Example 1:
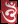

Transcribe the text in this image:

ঔঁ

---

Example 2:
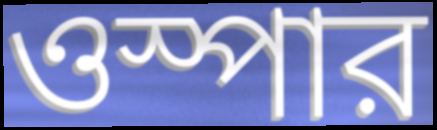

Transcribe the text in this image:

ওস্পার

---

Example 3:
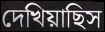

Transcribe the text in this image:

দেখিয়াছিস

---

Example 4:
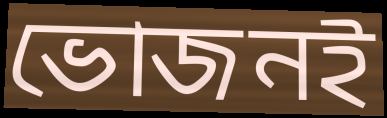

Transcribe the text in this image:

ভোজনই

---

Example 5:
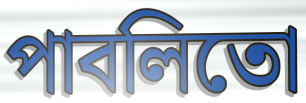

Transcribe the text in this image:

পাবলিতো